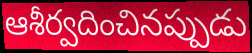
ఆశీర్వదించినప్పుడు